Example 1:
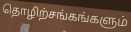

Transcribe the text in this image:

தொழிற்சங்கங்களும்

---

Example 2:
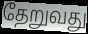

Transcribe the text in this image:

தேறுவது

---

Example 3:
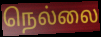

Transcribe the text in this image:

நெல்லை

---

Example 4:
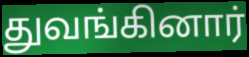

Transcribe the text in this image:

துவங்கினார்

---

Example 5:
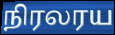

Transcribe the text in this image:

நிரலரய